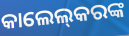
କାଲେଲ୍‌କରଙ୍କ